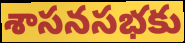
శాసనసభకు